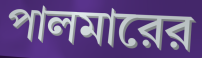
পালমারের